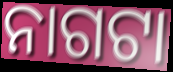
ନାଗଟା